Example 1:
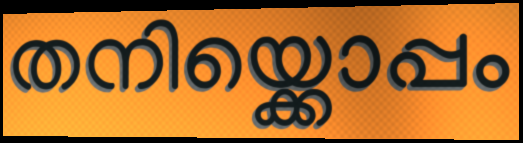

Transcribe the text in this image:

തനിയ്ക്കൊപ്പം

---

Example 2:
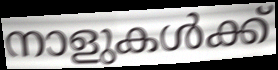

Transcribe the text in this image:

നാളുകൾക്ക്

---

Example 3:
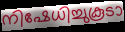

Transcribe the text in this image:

നിഷേധിച്ചുകൂടാ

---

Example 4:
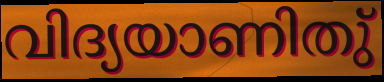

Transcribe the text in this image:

വിദ്യയാണിതു്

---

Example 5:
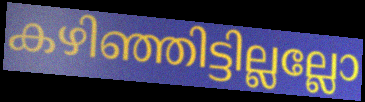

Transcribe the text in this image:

കഴിഞ്ഞിട്ടില്ലല്ലോ